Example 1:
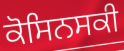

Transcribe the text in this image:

ਕੋਸਿਨਸਕੀ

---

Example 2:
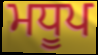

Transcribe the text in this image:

ਮਧੂਪ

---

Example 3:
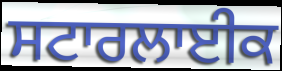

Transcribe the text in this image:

ਸਟਾਰਲਾਈਕ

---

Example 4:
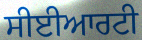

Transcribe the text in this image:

ਸੀਈਆਰਟੀ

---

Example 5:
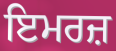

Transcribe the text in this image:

ਇਮਰਜ਼